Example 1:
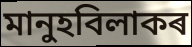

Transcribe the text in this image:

মানুহবিলাকৰ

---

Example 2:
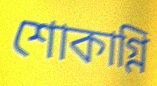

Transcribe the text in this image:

শোকাগ্নি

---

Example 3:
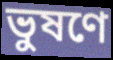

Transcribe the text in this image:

ভুষণে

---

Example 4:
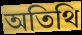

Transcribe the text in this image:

অতিথি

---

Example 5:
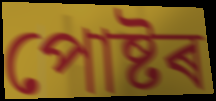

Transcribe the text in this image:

পোষ্টৰ